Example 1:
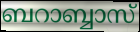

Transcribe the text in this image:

ബറാബ്ബാസ്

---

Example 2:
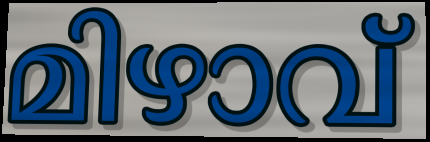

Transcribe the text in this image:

മിഴാവ്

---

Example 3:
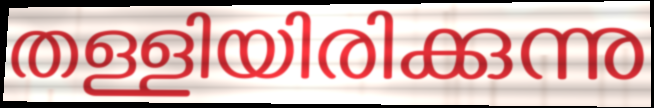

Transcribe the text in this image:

തള്ളിയിരിക്കുന്നു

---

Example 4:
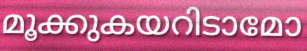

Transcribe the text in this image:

മൂക്കുകയറിടാമോ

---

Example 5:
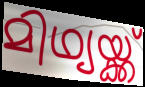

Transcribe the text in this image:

മിഥ്യയ്ക്ക്